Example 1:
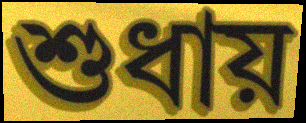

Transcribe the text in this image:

শুধায়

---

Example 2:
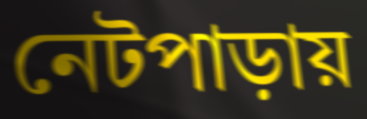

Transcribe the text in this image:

নেটপাড়ায়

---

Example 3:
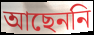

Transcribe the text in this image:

আছেননি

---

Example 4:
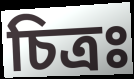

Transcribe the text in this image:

চিত্রঃ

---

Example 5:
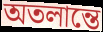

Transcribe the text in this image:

অতলান্তে